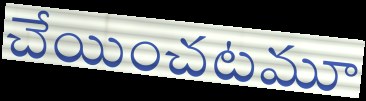
చేయించటమూ